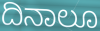
ದಿನಾಲೂ